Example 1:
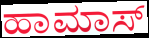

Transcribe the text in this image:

ಹಾಮಾಸ್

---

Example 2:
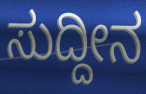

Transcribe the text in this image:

ಸುದ್ದೀನ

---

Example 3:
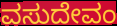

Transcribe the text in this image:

ವಸುದೇವಂ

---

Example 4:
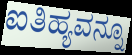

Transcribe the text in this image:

ಐತಿಹ್ಯವನ್ನೂ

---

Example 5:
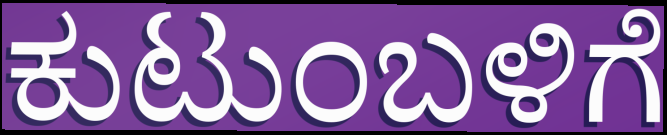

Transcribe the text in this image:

ಕುಟುಂಬಳಿಗೆ